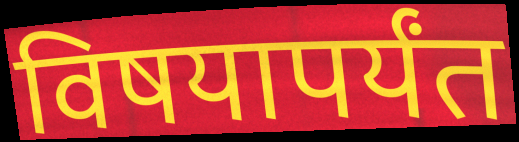
विषयापर्यंत